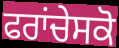
ਫਰਾਂਚੇਸਕੋ